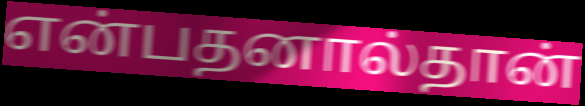
என்பதனால்தான்